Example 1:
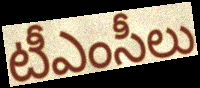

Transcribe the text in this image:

టీఎంసీలు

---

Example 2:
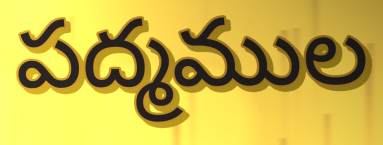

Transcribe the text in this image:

పద్మముల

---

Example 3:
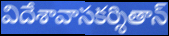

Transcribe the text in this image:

విదేశావాసకర్శితాన్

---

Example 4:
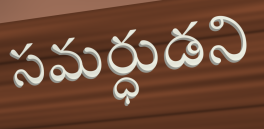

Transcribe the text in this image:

సమర్ధుడని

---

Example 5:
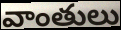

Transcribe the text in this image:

వాంతులు